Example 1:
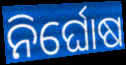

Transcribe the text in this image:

ନିର୍ଘୋଷ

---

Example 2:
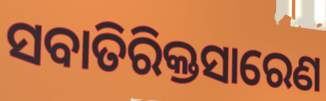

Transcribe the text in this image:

ସବାତିରିକ୍ତସାରେଣ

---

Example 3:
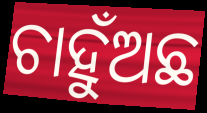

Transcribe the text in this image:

ଚାହୁଁଅଛ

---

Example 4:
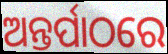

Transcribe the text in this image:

ଅନ୍ତର୍ପାଠରେ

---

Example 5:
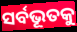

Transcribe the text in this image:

ସର୍ବଭୂତକୁ